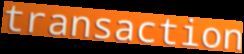
transaction